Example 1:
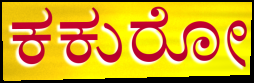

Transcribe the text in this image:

ಕಕುರೋ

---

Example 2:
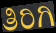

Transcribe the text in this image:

ತಿರಿಗಿ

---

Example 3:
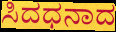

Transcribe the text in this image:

ಸಿದಧನಾದ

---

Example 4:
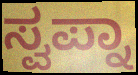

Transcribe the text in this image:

ಸ್ವಪ್ನಾ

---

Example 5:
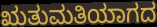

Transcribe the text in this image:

ಋತುಮತಿಯಾಗದ